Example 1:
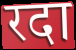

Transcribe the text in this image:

रदा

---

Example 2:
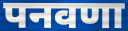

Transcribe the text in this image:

पनवणा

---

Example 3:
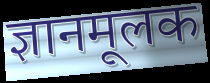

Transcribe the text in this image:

ज्ञानमूलक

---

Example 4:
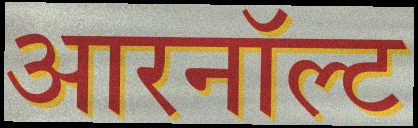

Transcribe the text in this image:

आरनॉल्ट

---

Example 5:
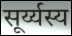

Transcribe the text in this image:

सूर्य्यस्य